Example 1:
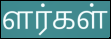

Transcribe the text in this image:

ளர்கள்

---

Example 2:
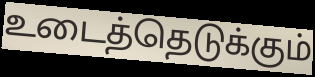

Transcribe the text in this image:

உடைத்தெடுக்கும்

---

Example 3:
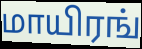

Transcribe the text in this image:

மாயிரங்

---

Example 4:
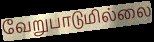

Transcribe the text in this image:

வேறுபாடுமில்லை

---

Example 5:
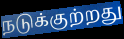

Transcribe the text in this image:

நடுக்குற்றது